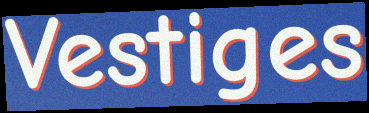
Vestiges